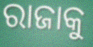
ରାଜାକୁ